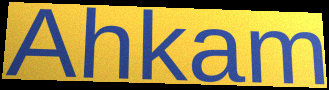
Ahkam